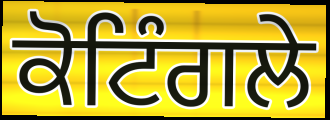
ਕੋਟਿੰਗਲੇ